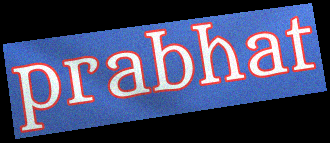
prabhat